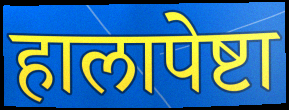
हालापेष्टा